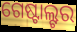
ଗେଷ୍ଟାଲ୍ଟର